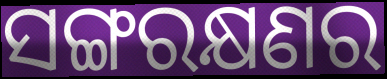
ସଙ୍ଗରକ୍ଷଣର